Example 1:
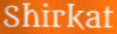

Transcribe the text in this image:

Shirkat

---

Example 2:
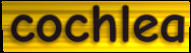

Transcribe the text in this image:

cochlea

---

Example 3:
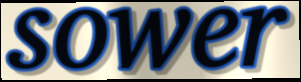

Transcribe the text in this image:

sower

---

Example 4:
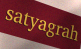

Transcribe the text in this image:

satyagrah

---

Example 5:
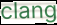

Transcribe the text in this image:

clang